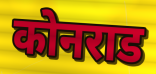
कोनराड